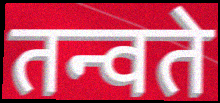
तन्वते